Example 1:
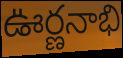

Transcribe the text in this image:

ఊర్ణనాభి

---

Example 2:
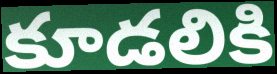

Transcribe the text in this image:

కూడలికి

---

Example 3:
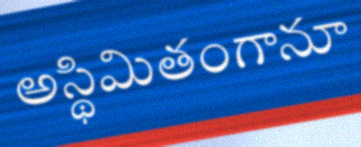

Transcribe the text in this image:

అస్థిమితంగానూ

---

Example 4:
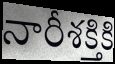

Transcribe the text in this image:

నారీశక్తికి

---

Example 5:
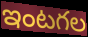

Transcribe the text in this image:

ఇంటగల